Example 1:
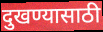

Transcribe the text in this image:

दुखण्यासाठी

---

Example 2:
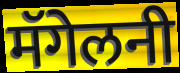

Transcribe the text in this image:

मॅगेलनी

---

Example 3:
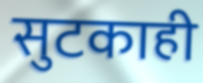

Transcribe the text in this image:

सुटकाही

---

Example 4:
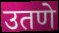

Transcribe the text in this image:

उतणे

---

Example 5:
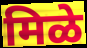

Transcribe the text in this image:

मिळे